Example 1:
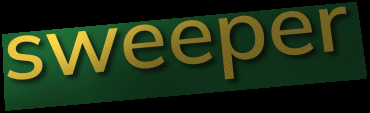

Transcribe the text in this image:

sweeper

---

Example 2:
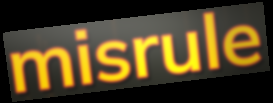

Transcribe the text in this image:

misrule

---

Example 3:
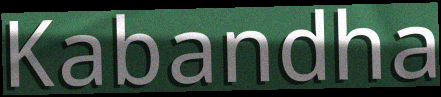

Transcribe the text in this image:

Kabandha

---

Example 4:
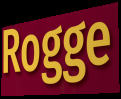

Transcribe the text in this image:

Rogge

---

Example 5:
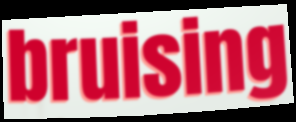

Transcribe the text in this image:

bruising